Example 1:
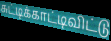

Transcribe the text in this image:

சுட்டிக்காட்டிவிட்டு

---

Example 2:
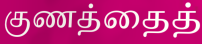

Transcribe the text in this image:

குணத்தைத்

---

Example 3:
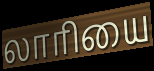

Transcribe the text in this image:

லாரியை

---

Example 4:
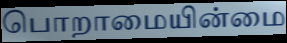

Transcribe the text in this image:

பொறாமையின்மை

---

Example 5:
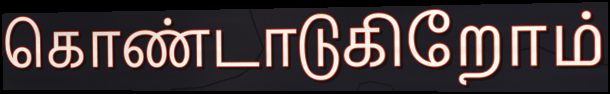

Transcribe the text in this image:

கொண்டாடுகிறோம்